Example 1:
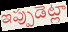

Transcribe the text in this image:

ఇప్పుడెట్లా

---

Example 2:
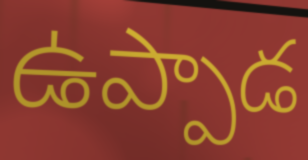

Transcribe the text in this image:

ఉప్పాడ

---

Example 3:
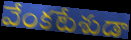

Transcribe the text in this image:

వేంకటేశుడా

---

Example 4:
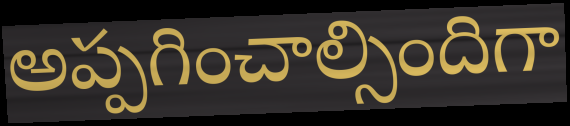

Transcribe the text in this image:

అప్పగించాల్సిందిగా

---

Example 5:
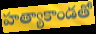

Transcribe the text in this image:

హత్యాకాండతో